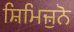
ਸ਼ਿਮਿਜ਼ੁਨੋ